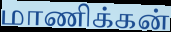
மாணிக்கன்